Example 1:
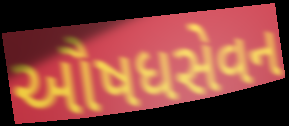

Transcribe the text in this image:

ઔષધસેવન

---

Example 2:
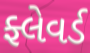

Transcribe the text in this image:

ફ્લેવર્ડ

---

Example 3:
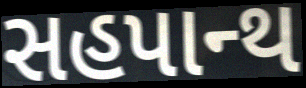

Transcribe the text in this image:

સહપાન્થ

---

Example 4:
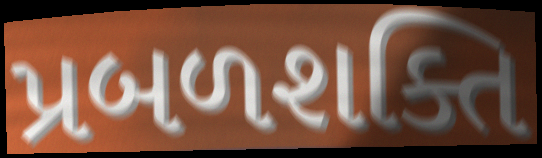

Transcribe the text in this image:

પ્રબળશક્તિ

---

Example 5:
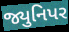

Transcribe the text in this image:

જ્યુનિપર